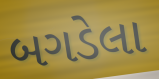
બગડેલા